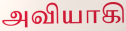
அவியாகி